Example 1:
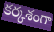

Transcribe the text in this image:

కర్కశంగా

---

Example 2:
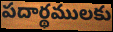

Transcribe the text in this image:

పదార్థములకు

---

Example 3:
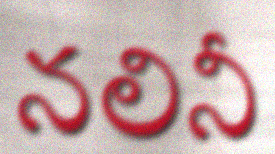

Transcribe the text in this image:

నలినీ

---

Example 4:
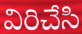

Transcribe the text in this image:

విరిచేసి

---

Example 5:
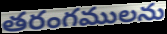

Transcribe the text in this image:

తరంగములను